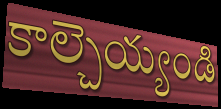
కాల్చెయ్యండి